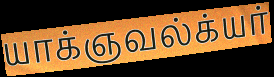
யாக்ஞவல்க்யர்